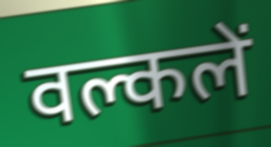
वल्कलें